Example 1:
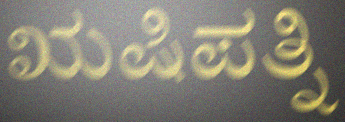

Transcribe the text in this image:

ಋಷಿಪತ್ನಿ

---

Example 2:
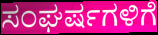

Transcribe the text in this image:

ಸಂಘರ್ಷಗಳಿಗೆ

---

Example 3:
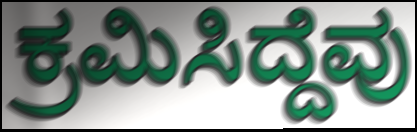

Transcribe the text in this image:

ಕ್ರಮಿಸಿದ್ದೆವು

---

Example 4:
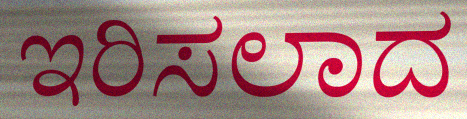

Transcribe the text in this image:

ಇರಿಸಲಾದ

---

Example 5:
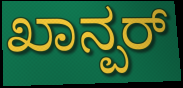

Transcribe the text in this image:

ಖಾನ್ಪರ್